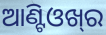
ଆଣ୍ଟିଓଖ୍‍ର